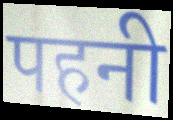
पहनी